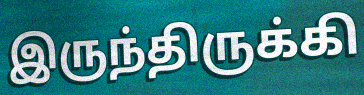
இருந்திருக்கி